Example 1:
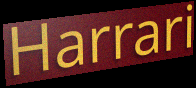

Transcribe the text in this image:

Harrari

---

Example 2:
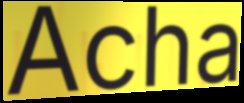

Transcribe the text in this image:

Acha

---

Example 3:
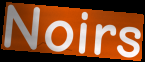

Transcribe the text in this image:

Noirs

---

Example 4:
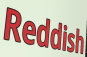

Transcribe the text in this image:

Reddish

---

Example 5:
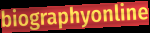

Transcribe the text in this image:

biographyonline